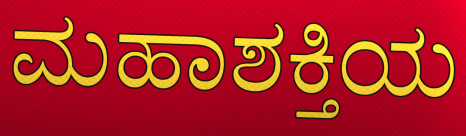
ಮಹಾಶಕ್ತಿಯ